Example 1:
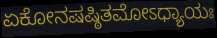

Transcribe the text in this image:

ಏಕೋನಷಷ್ಠಿತಮೋಽಧ್ಯಾಯಃ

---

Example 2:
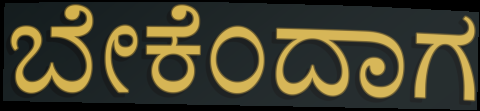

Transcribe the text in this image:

ಬೇಕೆಂದಾಗ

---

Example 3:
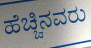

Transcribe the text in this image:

ಹೆಚ್ಚಿನವರು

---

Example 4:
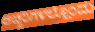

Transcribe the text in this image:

ಅಚ್ಚರಿಗಳಲ್ಲೊಂದು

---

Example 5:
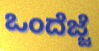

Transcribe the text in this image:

ಒಂದೆಜ್ಜೆ